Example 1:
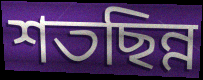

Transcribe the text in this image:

শতছিন্ন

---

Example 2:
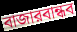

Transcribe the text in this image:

বাজারবান্ধব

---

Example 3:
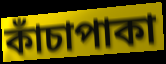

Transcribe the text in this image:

কাঁচাপাকা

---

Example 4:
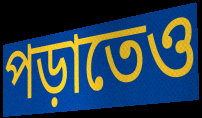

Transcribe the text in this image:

পড়াতেও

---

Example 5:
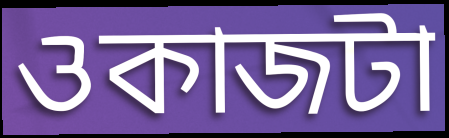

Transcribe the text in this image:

ওকাজটা